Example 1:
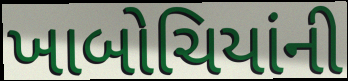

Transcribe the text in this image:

ખાબોચિયાંની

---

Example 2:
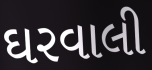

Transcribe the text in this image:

ઘરવાલી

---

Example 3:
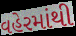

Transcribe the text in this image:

વહેરમાંથી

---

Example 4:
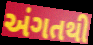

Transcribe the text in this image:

અંગતથી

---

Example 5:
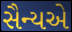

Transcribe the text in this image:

સૈન્યએ